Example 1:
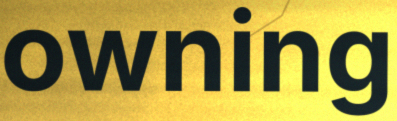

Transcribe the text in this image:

owning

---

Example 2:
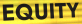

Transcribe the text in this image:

EQUITY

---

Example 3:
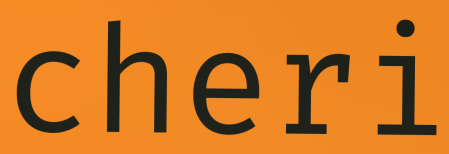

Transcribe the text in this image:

cheri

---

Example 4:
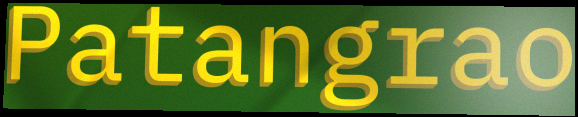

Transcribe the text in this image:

Patangrao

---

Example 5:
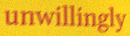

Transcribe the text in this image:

unwillingly